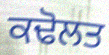
ਕਢੋਲਤ